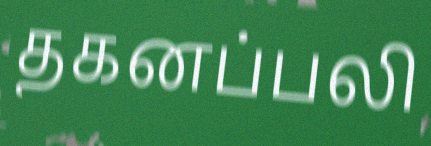
தகனப்பலி